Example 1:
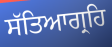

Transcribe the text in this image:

ਸੱਤਿਆਗ੍ਰਹਿ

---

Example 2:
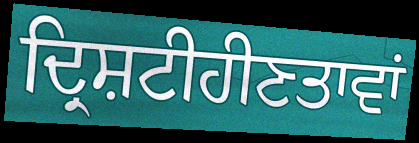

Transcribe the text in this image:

ਦ੍ਰਿਸ਼ਟੀਹੀਣਤਾਵਾਂ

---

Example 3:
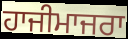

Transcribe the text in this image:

ਹਾਜੀਮਾਜਰਾ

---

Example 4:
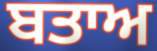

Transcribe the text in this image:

ਬਤਾਅ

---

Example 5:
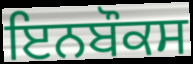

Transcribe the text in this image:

ਇਨਬੌਕਸ